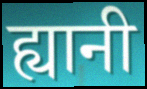
ह्यानी